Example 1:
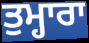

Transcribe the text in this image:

ਤੁਮ੍ਹਾਰਾ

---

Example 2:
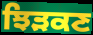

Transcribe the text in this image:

ਝਿੜਕਣ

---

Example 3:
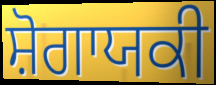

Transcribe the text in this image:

ਸ਼ੋਗਾਯਕੀ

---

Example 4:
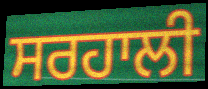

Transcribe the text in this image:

ਸਰਹਾਲੀ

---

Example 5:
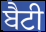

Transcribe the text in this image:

ਬੈਟੀ